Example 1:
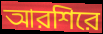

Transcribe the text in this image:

আরশিরে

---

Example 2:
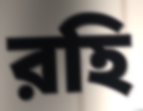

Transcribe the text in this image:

রহি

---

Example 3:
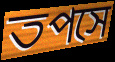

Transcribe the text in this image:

তপসে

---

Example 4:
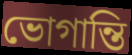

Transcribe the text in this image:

ভোগান্তি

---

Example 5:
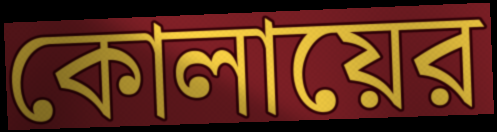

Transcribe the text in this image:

কোলায়ের